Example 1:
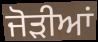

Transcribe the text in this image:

ਜੋਡ਼ੀਆਂ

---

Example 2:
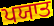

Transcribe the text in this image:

ਪਯਾਤ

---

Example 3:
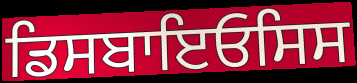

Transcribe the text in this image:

ਡਿਸਬਾਇਓਸਿਸ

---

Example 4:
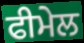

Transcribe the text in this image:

ਫੀਮੇਲ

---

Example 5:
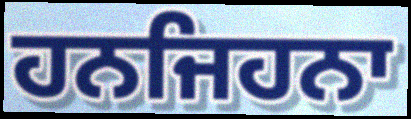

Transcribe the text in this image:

ਹਨਜਿਹਨਾ